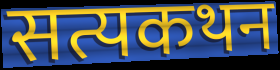
सत्यकथन